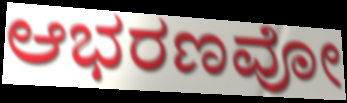
ಆಭರಣವೋ